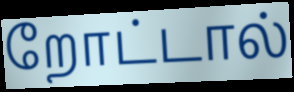
றோட்டால்